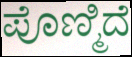
ಪೊಣ್ಮಿದೆ